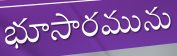
భూసారమును